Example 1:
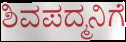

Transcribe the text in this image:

ಶಿವಪದ್ಮನಿಗೆ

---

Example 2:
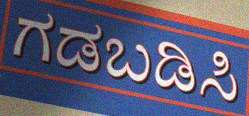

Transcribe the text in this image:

ಗಡಬಡಿಸಿ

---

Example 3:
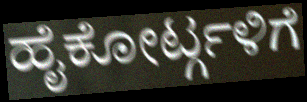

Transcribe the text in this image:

ಹೈಕೋರ್ಟ್ಗಳಿಗೆ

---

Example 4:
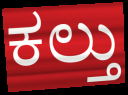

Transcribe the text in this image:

ಕಲ್ತು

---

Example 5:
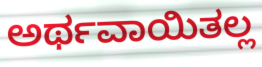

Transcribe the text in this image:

ಅರ್ಥವಾಯಿತಲ್ಲ